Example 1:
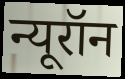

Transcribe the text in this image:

न्यूरॉन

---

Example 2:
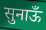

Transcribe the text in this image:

सुनाऊँ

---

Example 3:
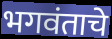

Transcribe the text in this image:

भगवंताचे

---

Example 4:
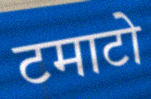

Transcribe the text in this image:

टमाटो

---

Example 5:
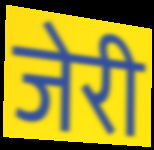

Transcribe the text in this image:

जेरी